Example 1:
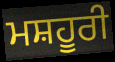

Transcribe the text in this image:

ਮਸ਼ਹੂਰੀ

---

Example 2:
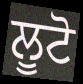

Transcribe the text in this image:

ਲੂਟੋ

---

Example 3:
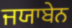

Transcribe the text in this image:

ਜਯਾਬੇਨ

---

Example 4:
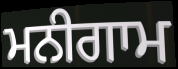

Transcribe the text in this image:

ਮਨੀਗਾਮ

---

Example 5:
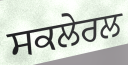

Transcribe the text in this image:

ਸਕਲੇਰਲ